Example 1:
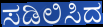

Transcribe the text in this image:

ಸಡಿಲಿಸಿದ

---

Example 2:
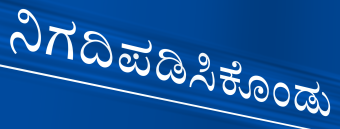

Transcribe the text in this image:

ನಿಗದಿಪಡಿಸಿಕೊಂಡು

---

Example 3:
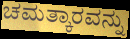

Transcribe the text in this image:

ಚಮತ್ಕಾರವನ್ನು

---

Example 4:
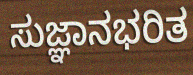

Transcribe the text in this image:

ಸುಜ್ಞಾನಭರಿತ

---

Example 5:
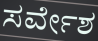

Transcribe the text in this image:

ಸರ್ವೇಶ